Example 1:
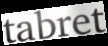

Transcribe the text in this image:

tabret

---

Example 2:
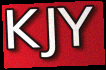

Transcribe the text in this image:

KJY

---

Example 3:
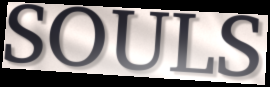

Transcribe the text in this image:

SOULS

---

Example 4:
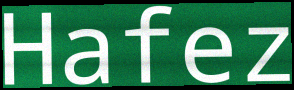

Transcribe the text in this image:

Hafez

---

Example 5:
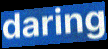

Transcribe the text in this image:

daring